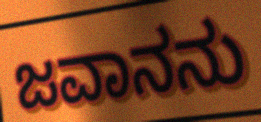
ಜವಾನನು